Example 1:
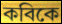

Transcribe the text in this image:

কবিকে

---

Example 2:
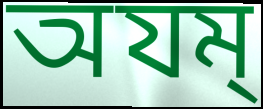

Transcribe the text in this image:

অযম্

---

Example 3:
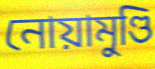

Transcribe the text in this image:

নোয়ামুণ্ডি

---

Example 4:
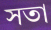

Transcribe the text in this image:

সতা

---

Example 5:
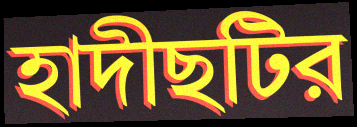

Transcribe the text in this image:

হাদীছটির